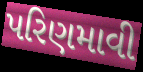
પરિણમાવી